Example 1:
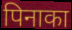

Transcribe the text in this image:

पिनाका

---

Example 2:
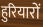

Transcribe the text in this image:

हुरियारों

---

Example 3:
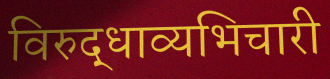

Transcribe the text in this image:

विरुद्धाव्यभिचारी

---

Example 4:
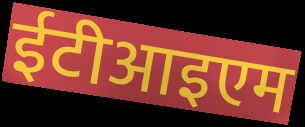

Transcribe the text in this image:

ईटीआइएम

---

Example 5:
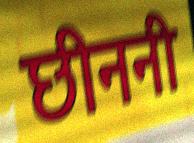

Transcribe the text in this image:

छीननी